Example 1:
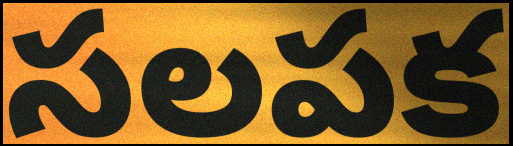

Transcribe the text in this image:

సలపక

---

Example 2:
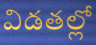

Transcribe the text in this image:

విడతల్లో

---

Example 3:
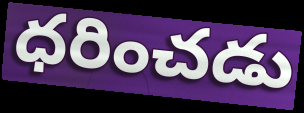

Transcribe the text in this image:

ధరించడు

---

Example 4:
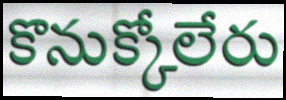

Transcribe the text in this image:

కొనుక్కోలేరు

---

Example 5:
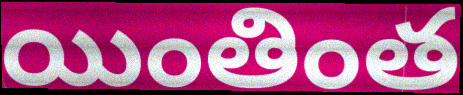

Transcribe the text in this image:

యింతింత